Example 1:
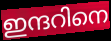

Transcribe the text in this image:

ഇന്ദറിനെ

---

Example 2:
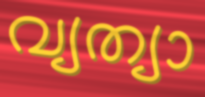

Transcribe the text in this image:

വ്യത്യാ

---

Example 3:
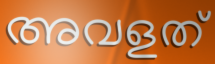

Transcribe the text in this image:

അവളത്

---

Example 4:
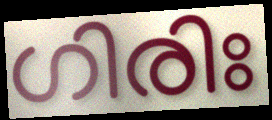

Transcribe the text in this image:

ഗിരിഃ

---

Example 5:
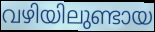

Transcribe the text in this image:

വഴിയിലുണ്ടായ